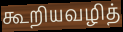
கூறியவழித்